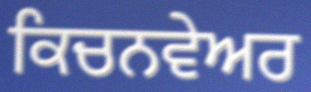
ਕਿਚਨਵੇਅਰ